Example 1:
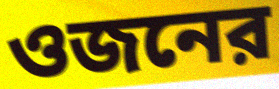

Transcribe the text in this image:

ওজনের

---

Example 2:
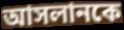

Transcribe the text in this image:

আসলানকে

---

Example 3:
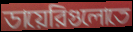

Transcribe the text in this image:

ডায়েরিগুলোতে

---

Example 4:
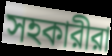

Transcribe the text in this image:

সহকারীরা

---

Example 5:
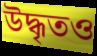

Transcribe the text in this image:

উদ্ধৃতও